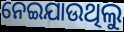
ନେଇଯାଉଥିଲୁ